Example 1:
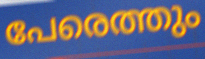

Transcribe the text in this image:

പേരെത്തും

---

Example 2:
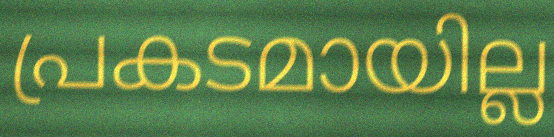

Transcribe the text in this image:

പ്രകടമായില്ല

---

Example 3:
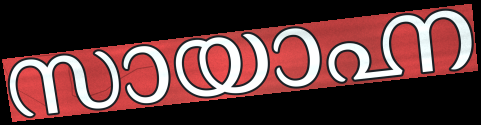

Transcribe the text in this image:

സായാഹ്ന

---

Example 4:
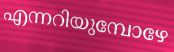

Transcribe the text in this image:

എന്നറിയുമ്പോഴേ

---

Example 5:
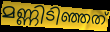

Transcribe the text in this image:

മണ്ണിടിഞ്ഞത്